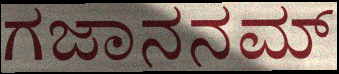
ಗಜಾನನಮ್